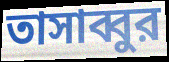
তাসাব্বুর